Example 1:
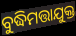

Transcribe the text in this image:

ବୁଦ୍ଧିମତ୍ତାଯୁକ୍ତ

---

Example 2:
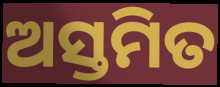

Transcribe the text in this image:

ଅସ୍ତମିତ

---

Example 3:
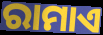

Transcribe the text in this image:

ରାମାଏ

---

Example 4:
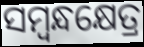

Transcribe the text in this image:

ସମ୍ବନ୍ଧକ୍ଷେତ୍ର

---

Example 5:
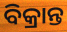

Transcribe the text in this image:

ବିକ୍ରାନ୍ତ